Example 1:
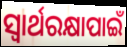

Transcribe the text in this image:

ସ୍ୱାର୍ଥରକ୍ଷାପାଇଁ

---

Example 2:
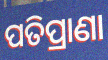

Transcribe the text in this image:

ପତିପ୍ରାଣା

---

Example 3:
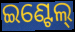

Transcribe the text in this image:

ଇଣ୍ଟେଲ୍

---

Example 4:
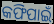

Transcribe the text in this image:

କଫିପାଇଁ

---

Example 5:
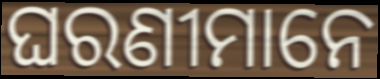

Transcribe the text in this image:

ଘରଣୀମାନେ